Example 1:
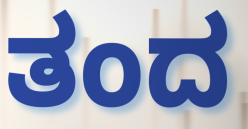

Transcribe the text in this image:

ತಂದ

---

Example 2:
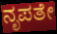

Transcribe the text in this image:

ನೃಪತೇ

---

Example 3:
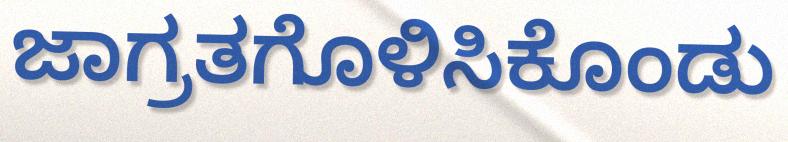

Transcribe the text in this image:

ಜಾಗ್ರತಗೊಳಿಸಿಕೊಂಡು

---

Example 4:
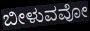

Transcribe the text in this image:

ಬೀಳುವವೋ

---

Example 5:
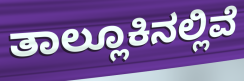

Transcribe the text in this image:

ತಾಲ್ಲೂಕಿನಲ್ಲಿವೆ